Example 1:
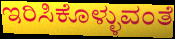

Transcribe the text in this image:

ಇರಿಸಿಕೊಳ್ಳುವಂತೆ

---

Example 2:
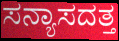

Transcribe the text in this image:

ಸನ್ಯಾಸದತ್ತ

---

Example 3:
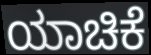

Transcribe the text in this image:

ಯಾಚಿಕೆ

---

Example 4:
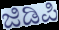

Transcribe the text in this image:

ಜಿಡಿಪಿ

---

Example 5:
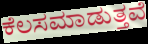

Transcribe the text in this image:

ಕೆಲಸಮಾಡುತ್ತವೆ